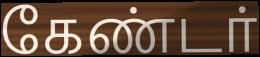
கேண்டர்